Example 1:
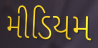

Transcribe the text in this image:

મીડિયમ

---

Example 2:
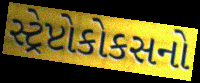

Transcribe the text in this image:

સ્ટ્રેપ્ટોકોકસનો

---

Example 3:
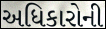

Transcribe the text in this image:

અધિકારોની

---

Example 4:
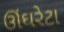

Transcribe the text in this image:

ઊંઘરેટા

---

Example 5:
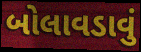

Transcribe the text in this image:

બોલાવડાવું